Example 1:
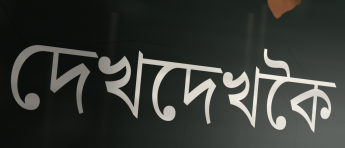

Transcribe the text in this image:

দেখদেখকৈ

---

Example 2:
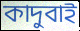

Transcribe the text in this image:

কাদুবাই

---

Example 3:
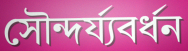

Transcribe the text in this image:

সৌন্দৰ্য্যবৰ্ধন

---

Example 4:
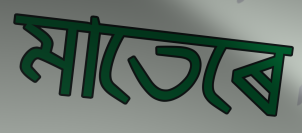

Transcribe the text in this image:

মাতেৰে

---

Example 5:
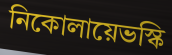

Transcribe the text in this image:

নিকোলায়েভস্কি